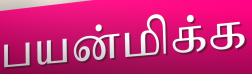
பயன்மிக்க